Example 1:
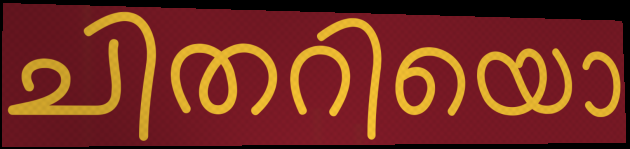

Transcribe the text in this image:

ചിതറിയൊ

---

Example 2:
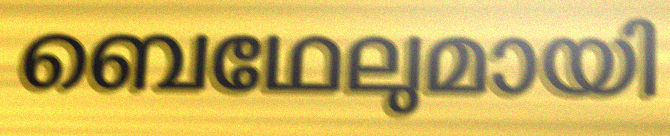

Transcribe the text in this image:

ബെഥേലുമായി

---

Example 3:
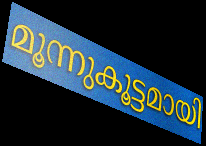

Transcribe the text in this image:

മൂന്നുകൂട്ടമായി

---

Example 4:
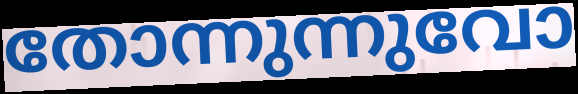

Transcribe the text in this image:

തോന്നുന്നുവോ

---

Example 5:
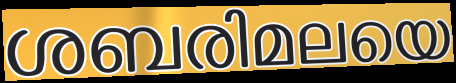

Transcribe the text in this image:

ശബരിമലയെ